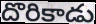
దొరికాడు